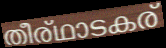
തീര്ഥാടകര്